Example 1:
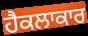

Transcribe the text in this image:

ਹੈਕਲਾਕਾਰ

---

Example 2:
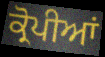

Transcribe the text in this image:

ਕ੍ਰੋਪੀਆਂ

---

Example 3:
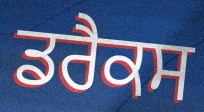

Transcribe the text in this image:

ਡਰੈਕਸ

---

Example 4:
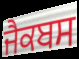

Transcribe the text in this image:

ਜੈਕਬਸ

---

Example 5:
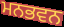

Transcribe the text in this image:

ਮਨਭਵਨ